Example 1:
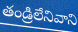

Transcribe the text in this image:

తండ్రిలేనివాని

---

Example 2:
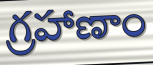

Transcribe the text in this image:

గ్రహాణాం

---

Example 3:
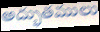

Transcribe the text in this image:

అద్భుతములు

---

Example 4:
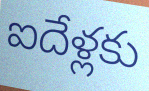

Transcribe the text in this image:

ఐదేళ్లకు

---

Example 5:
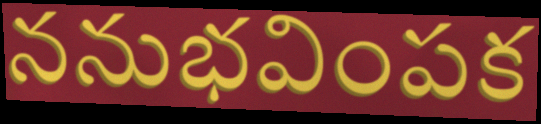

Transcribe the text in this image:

ననుభవింపక